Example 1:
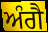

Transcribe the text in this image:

ਅੰਗੈ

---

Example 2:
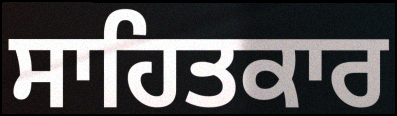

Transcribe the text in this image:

ਸਾਹਿਤਕਾਰ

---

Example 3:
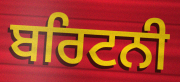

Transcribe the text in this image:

ਬਰਿਟਨੀ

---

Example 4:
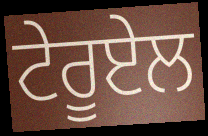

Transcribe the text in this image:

ਟੇਰੂਏਲ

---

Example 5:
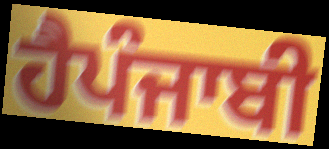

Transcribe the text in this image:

ਹੈਪੰਜਾਬੀ